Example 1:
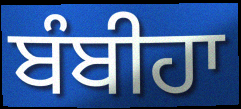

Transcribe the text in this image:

ਬੰਬੀਹਾ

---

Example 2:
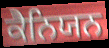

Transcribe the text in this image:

ਕੈਨਿਯਨ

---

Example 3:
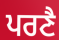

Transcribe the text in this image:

ਪਰਣੈ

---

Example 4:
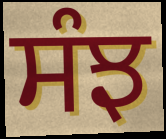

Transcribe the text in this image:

ਸੰਝ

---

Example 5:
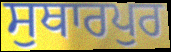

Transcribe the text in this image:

ਸੁਥਾਰਪੁਰ